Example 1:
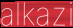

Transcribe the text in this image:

alkazi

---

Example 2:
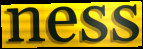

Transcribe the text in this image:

ness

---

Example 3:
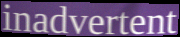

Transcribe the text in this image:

inadvertent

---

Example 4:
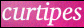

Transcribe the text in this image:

curtipes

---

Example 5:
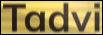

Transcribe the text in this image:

Tadvi